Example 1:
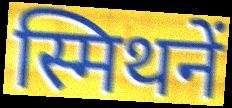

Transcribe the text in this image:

स्मिथनें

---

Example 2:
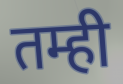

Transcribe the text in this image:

तम्ही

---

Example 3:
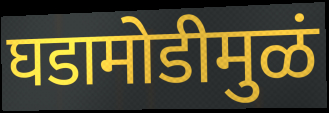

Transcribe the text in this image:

घडामोडीमुळं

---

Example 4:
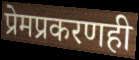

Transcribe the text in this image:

प्रेमप्रकरणही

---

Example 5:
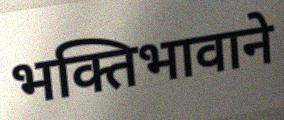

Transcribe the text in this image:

भक्तिभावाने